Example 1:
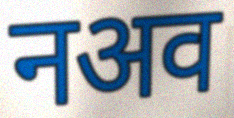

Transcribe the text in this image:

नअव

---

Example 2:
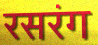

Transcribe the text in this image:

रसरंग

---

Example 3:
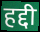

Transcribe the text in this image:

हद्दी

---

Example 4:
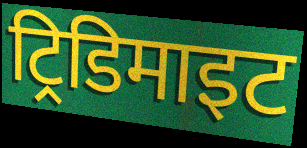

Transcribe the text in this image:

ट्रिडिमाइट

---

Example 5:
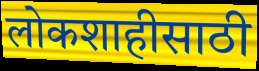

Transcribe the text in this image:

लोकशाहीसाठी